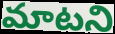
మాటని